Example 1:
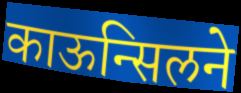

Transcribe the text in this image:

काऊन्सिलने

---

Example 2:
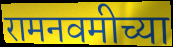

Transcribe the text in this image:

रामनवमीच्या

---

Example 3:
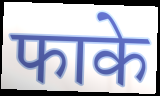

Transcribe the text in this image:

फाके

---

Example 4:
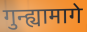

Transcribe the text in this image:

गुन्ह्यामागे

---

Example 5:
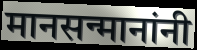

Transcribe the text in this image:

मानसन्मानांनी